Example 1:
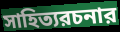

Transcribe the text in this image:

সাহিত্যরচনার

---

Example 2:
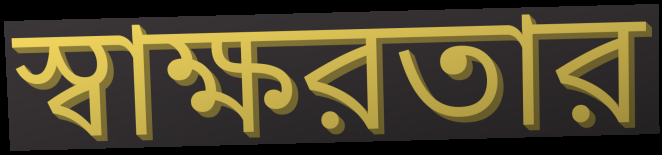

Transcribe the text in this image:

স্বাক্ষরতার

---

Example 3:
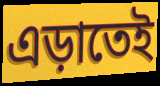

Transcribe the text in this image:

এড়াতেই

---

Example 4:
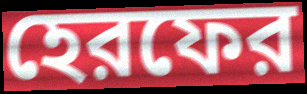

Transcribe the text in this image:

হেরফের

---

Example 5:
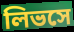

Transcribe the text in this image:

লিভসে